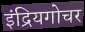
इंद्रियगोचर